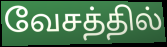
வேசத்தில்